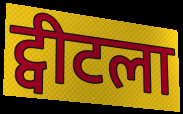
ट्वीटला